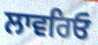
ਲਾਵਰਿਓ